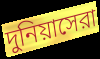
দুনিয়াসেরা